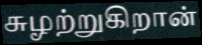
சுழற்றுகிறான்